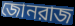
জোনরাজ